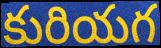
కురియగ